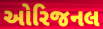
ઓરિજનલ